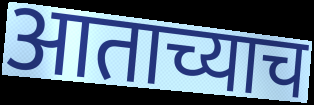
आताच्याच